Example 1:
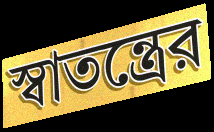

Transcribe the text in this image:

স্বাতন্ত্রের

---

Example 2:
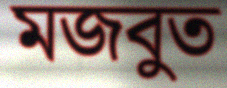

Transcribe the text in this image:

মজবুত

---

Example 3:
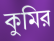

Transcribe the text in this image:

কুমির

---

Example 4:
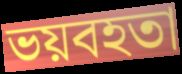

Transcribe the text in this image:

ভয়বহতা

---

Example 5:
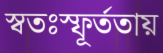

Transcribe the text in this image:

স্বতঃস্ফূর্ততায়